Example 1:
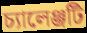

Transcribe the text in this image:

চ্যালেঞ্জটি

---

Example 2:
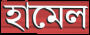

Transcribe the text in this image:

হামেল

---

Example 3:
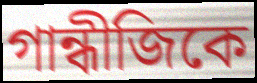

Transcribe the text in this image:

গান্ধীজিকে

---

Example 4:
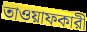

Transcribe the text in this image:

তাওয়াফকারী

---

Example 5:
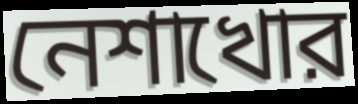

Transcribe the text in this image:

নেশাখোর